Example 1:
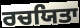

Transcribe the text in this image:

ਰਚਯਿਤਾ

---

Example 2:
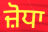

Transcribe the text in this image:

ਜ਼ੋਧਾ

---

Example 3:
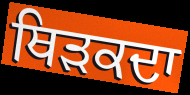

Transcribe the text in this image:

ਥਿੜਕਦਾ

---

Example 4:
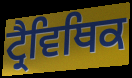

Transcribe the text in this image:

ਟ੍ਰੈਵਿਥਿਕ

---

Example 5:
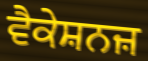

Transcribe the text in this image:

ਵੈਕੇਸ਼ਨਜ਼